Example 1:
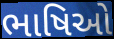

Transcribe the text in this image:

ભાષિઓ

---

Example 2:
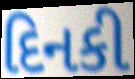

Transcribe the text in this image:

દિનકી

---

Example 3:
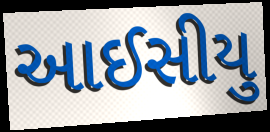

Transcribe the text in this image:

આઈસીયુ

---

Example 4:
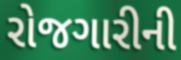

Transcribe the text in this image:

રોજગારીની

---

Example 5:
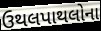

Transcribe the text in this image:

ઉથલપાથલોના